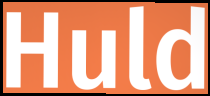
Huld